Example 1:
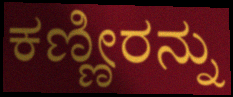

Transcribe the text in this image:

ಕಣ್ಣೀರನ್ನು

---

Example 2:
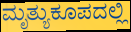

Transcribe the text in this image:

ಮೃತ್ಯುಕೂಪದಲ್ಲಿ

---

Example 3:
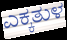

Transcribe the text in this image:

ಎಕ್ಕತುಳ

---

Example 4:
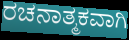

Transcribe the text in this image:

ರಚನಾತ್ಮಕವಾಗಿ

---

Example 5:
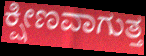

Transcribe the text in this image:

ಕ್ಷೀಣವಾಗುತ್ತ